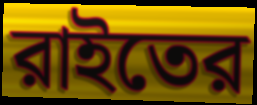
রাইতের